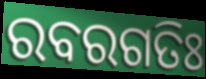
ରବରଗତିଃ